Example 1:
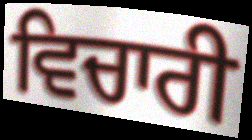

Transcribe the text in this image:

ਵਿਚਾਰੀ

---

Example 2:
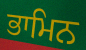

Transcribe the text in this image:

ਭਾਮਿਨ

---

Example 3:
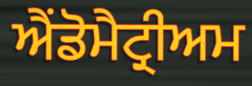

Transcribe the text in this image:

ਐਂਡੋਮੈਟ੍ਰੀਅਮ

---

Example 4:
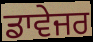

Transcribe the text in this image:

ਡਾਵੇਜਰ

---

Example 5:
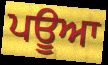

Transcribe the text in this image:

ਪਊਆ